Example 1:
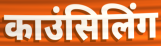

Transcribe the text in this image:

काउंसिलिंग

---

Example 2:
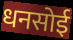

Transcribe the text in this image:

धनसोई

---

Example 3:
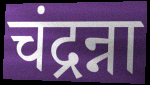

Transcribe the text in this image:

चंद्रन्ना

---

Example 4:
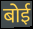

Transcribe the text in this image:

बोई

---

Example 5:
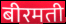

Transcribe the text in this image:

बीरमती